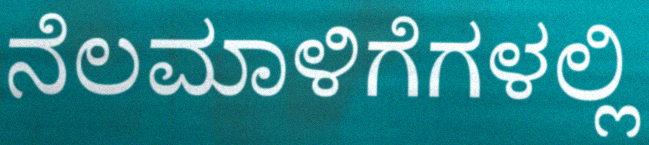
ನೆಲಮಾಳಿಗೆಗಳಲ್ಲಿ